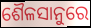
ଶୈଳସାନୁରେ